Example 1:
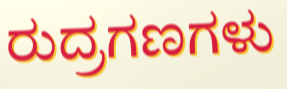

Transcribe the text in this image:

ರುದ್ರಗಣಗಳು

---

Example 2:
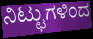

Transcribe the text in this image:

ನಿಟ್ಟುಗಳಿಂದ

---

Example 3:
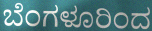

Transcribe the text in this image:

ಬೆಂಗಳೂರಿಂದ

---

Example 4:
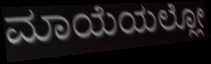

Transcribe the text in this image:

ಮಾಯೆಯಲ್ಲೋ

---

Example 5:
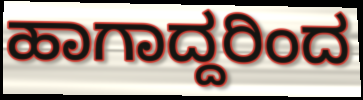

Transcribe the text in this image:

ಹಾಗಾದ್ದರಿಂದ